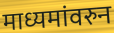
माध्यमांवरुन